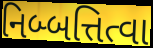
નિબ્બત્તિત્વા